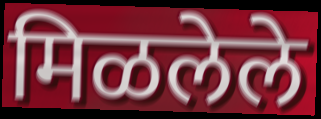
मिळलेले